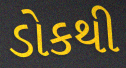
ડોકથી